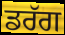
ਡਰੱਗ